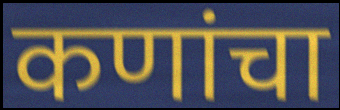
कणांचा